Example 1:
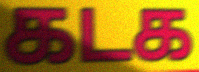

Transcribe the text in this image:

கடக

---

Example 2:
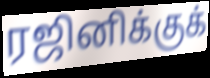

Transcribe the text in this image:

ரஜினிக்குக்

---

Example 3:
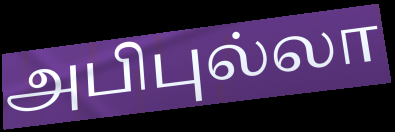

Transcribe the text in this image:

அபிபுல்லா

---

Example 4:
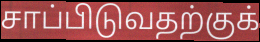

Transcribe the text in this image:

சாப்பிடுவதற்குக்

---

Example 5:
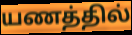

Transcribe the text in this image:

யணத்தில்